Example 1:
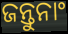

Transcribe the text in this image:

ଜନ୍ତୁନାଂ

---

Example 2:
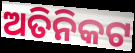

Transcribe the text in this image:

ଅତିନିକଟ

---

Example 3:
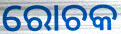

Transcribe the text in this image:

ରୋଚକ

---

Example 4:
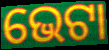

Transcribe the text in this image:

ଭେଟା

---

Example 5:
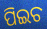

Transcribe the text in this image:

ପିଇଚ